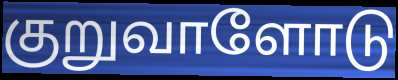
குறுவாளோடு